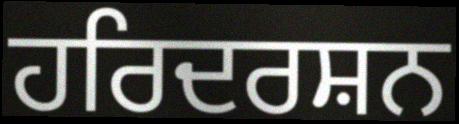
ਹਰਿਦਰਸ਼ਨ